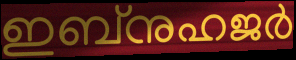
ഇബ്നുഹജർ